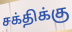
சக்திக்கு